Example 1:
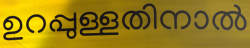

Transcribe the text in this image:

ഉറപ്പുള്ളതിനാൽ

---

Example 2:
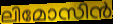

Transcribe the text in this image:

ലിമോസിൻ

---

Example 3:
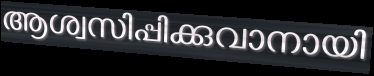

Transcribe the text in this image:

ആശ്വസിപ്പിക്കുവാനായി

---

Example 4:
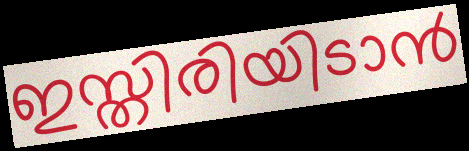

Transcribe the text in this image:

ഇസ്തിരിയിടാൻ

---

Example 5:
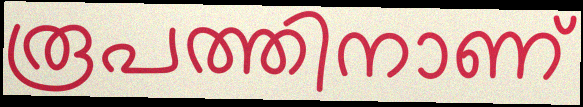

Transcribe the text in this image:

രൂപത്തിനാണ്